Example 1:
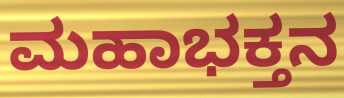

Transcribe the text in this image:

ಮಹಾಭಕ್ತನ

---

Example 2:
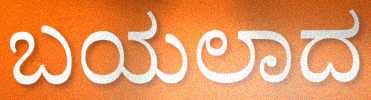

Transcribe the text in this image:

ಬಯಲಾದ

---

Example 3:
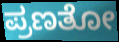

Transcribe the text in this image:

ಪ್ರಣತೋ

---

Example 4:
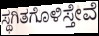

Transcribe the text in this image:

ಸ್ಥಗಿತಗೊಳಿಸ್ತೇವೆ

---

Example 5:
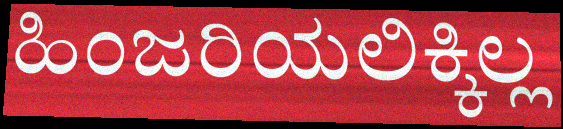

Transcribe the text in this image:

ಹಿಂಜರಿಯಲಿಕ್ಕಿಲ್ಲ